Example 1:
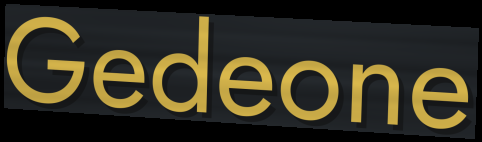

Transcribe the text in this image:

Gedeone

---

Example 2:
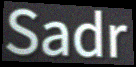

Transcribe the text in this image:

Sadr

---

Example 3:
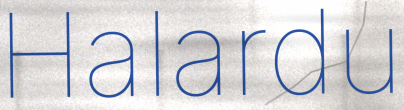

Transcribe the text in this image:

Halardu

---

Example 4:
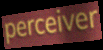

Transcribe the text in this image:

perceiver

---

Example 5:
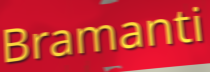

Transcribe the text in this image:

Bramanti